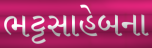
ભટ્ટસાહેબના